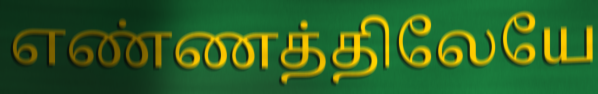
எண்ணத்திலேயே